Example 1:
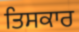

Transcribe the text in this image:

ਤਿਸਕਾਰ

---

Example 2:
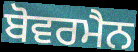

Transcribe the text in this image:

ਬੋਵਰਮੈਨ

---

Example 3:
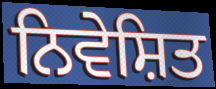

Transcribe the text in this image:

ਨਿਵੇਸ਼ਿਤ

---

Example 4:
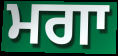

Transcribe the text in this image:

ਮਗਾ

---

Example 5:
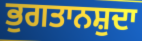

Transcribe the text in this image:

ਭੁਗਤਾਨਸ਼ੁਦਾ